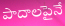
పాదాలపైనే